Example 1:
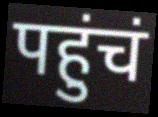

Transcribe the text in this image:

पहुंचं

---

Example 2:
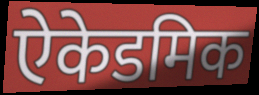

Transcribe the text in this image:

ऐकेडमिक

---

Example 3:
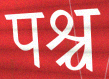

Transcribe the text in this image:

पश्च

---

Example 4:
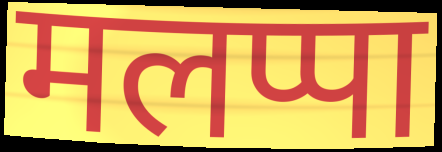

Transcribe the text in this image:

मलप्पा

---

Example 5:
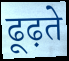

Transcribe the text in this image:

ढूढ़ते